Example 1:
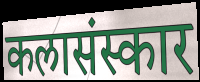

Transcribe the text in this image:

कलासंस्कार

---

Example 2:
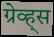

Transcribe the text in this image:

ग्रेव्ह्स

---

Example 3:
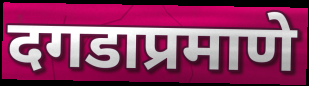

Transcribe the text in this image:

दगडाप्रमाणे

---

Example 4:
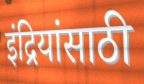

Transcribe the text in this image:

इंद्रियांसाठी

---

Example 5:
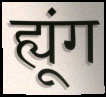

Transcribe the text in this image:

ह्यूंग